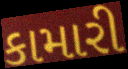
કામારી